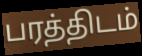
பரத்திடம்